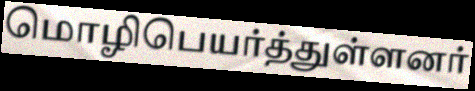
மொழிபெயர்த்துள்ளனர்